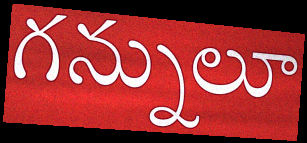
గన్నులూ